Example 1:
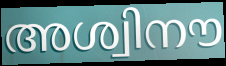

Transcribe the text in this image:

അശ്വിനൗ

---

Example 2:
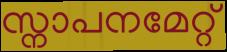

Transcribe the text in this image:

സ്നാപനമേറ്റ്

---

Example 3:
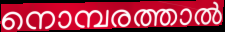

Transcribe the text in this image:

നൊമ്പരത്താൽ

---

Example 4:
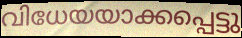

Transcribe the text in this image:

വിധേയയാക്കപ്പെട്ടു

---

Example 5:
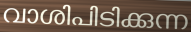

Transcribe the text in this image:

വാശിപിടിക്കുന്ന